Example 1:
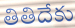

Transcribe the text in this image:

తితిదేకు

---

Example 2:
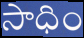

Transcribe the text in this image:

సాధిం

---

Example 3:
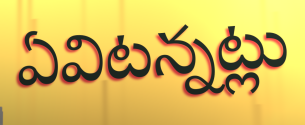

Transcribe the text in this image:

ఏవిటన్నట్లు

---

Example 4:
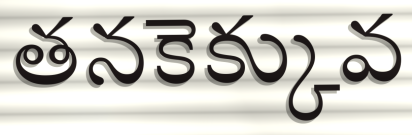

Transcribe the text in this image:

తనకెక్కువ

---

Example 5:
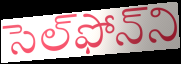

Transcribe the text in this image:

సెల్‌ఫోన్‌ని